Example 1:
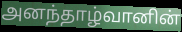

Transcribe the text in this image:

அனந்தாழ்வானின்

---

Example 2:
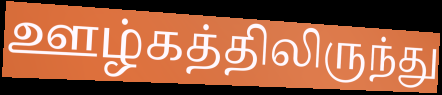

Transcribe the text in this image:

ஊழ்கத்திலிருந்து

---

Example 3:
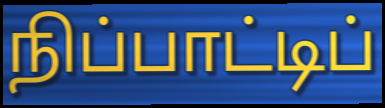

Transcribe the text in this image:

நிப்பாட்டிப்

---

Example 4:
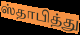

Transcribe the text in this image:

ஸ்தாபித்து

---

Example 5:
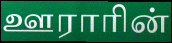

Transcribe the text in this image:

ஊராரின்